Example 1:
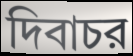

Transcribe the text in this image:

দিবাচর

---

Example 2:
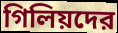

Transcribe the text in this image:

গিলিয়দের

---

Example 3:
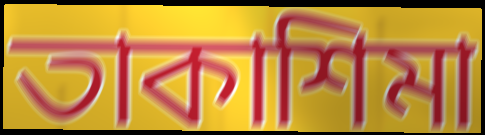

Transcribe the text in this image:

তাকাশিমা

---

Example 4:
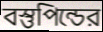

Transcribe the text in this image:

বস্তুপিন্ডের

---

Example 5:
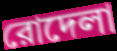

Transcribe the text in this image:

রোদেলা